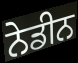
ਨੇਡੀਨ